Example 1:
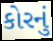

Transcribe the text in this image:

કોરનું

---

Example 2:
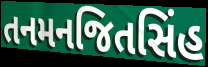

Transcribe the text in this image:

તનમનજિતસિંહ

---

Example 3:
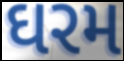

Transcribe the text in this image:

ઘરમ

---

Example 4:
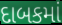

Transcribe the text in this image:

દાબકમાં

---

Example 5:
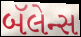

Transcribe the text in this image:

બૅલેન્સ